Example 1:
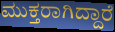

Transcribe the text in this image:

ಮುಕ್ತರಾಗಿದ್ದಾರೆ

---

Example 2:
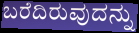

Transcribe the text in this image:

ಬರೆದಿರುವುದನ್ನು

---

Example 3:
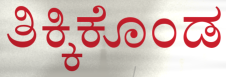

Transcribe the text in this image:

ತಿಕ್ಕಿಕೊಂಡ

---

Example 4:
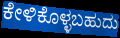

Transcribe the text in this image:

ಕೇಳಿಕೊಳ್ಳಬಹುದು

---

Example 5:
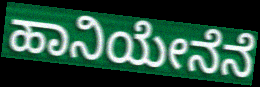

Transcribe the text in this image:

ಹಾನಿಯೇನೆನೆ